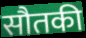
सौतकी